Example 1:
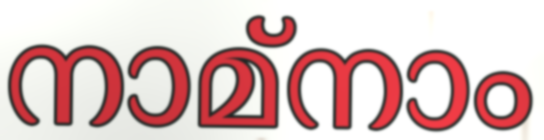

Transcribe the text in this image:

നാമ്നാം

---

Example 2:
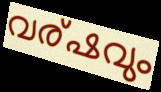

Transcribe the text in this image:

വര്ഷവും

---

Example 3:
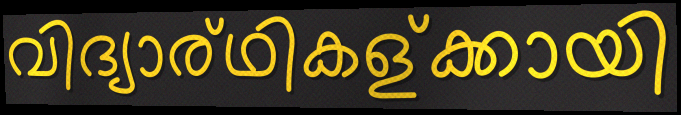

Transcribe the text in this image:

വിദ്യാര്ഥികള്ക്കായി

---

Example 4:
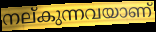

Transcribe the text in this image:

നല്കുന്നവയാണ്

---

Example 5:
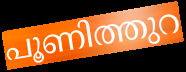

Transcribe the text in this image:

പൂണിത്തുറ